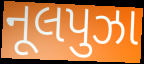
નૂલપુઝા